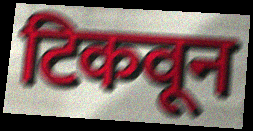
टिकवून